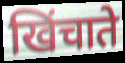
खिंचाते